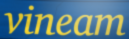
vineam